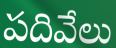
పదివేలు